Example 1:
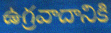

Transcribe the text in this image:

ఉగ్రవాదానికి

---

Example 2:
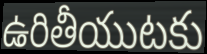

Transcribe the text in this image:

ఉరితీయుటకు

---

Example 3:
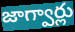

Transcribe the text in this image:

జాగ్వార్లు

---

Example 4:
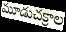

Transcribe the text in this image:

మూడుచక్రాల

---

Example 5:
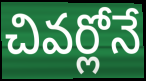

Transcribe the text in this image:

చివర్లోనే